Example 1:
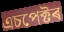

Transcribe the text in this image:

এচপেক্টৰ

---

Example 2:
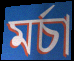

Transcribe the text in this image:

মৰ্চা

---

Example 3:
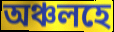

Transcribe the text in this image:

অঞ্চলহে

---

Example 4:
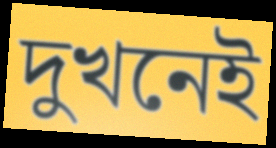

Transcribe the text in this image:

দুখনেই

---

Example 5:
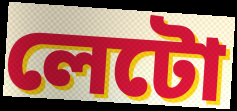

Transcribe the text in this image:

লেটো